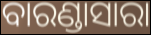
ବାରଣ୍ଡାସାରା